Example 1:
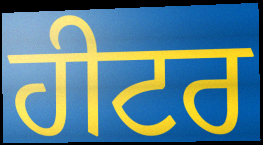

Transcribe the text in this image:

ਹੀਟਰ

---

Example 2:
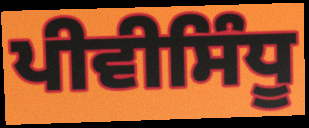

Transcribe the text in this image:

ਪੀਵੀਸਿੰਧੂ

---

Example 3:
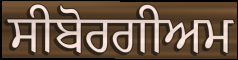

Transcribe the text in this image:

ਸੀਬੋਰਗੀਅਮ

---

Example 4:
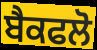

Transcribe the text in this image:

ਬੈਕਫਲੋ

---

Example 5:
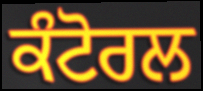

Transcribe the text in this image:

ਕੰਟੋਰਲ